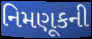
નિમણૂકની